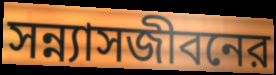
সন্ন্যাসজীবনের